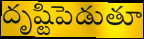
దృష్టిపెడుతూ